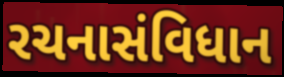
રચનાસંવિધાન